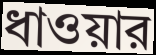
ধাওয়ার